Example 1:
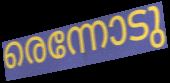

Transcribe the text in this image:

രെന്നോടു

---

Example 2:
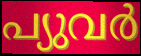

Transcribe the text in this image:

പ്യുവർ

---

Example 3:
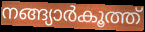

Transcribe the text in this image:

നങ്ങ്യാർകൂത്ത്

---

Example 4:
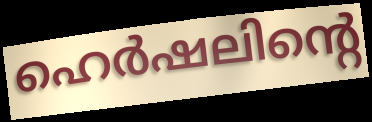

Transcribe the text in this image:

ഹെർഷലിന്റെ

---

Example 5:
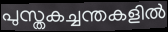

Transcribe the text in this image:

പുസ്തകച്ചന്തകളിൽ